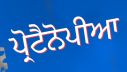
ਪ੍ਰੋਟੈਨੋਪੀਆ